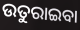
ଉତୁରାଇବା